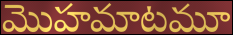
మొహమాటమూ